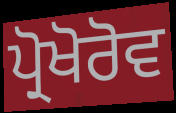
ਪ੍ਰੋਖੋਰੋਵ